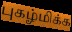
புகழ்மிக்க